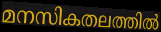
മനസികതലത്തിൽ